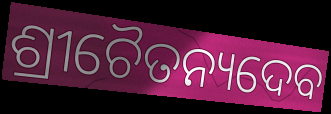
ଶ୍ରୀଚୈତନ୍ୟଦେବ